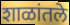
शाळांतले